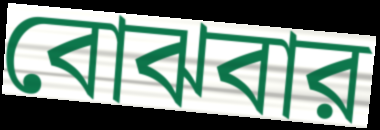
বোঝবার